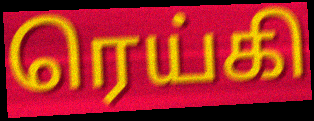
ரெய்கி